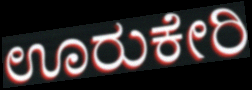
ಊರುಕೇರಿ